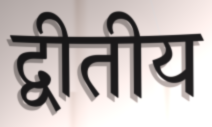
द्वीतीय